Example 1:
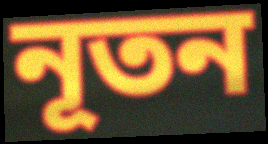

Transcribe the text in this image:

নূতন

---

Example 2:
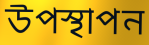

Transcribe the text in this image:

উপস্থাপন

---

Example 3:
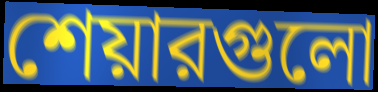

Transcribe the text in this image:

শেয়ারগুলো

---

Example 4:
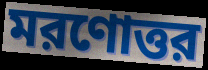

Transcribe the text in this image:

মরণোত্তর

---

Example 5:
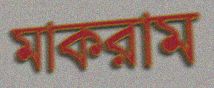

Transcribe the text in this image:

মাকরাম